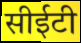
सीईटी